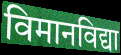
विमानविद्या